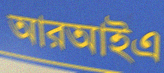
আরআইএ